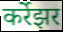
कर्रेझर